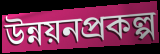
উন্নয়নপ্রকল্প